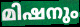
മിഷനും